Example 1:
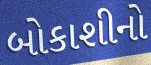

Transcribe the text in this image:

બોકાશીનો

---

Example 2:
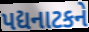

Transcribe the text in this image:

પદ્યનાટકને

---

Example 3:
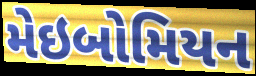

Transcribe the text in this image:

મેઇબોમિયન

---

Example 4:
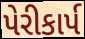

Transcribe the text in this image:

પેરીકાર્પ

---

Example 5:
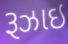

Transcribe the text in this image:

રૂઝાઇ